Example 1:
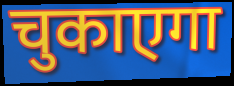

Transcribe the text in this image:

चुकाएगा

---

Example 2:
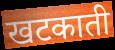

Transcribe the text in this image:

खटकाती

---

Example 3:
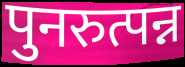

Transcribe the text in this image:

पुनरुत्पन्न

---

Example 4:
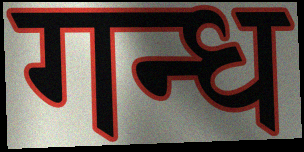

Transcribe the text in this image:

गन्‍ध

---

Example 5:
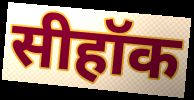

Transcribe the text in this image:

सीहॉक